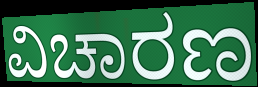
ವಿಚಾರಣ